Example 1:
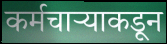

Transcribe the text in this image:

कर्मचाऱ्याकडून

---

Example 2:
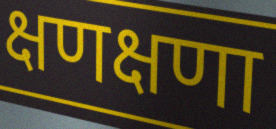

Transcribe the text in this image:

क्षणक्षणा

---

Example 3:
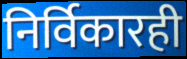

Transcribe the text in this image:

निर्विकारही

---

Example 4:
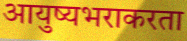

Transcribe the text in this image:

आयुष्यभराकरता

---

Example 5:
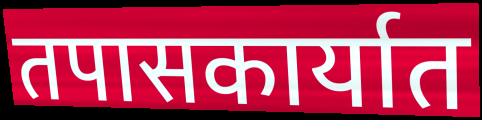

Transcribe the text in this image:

तपासकार्यात